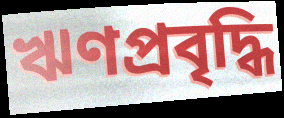
ঋণপ্রবৃদ্ধি